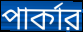
পার্কার